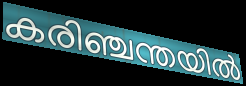
കരിഞ്ചന്തയിൽ